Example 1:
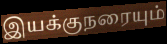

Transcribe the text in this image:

இயக்குநரையும்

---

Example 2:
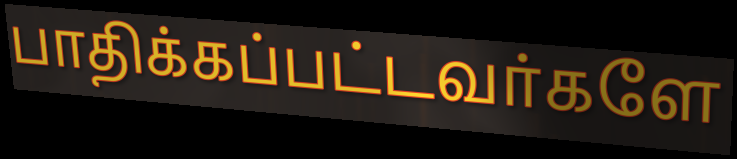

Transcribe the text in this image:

பாதிக்கப்பட்டவர்களே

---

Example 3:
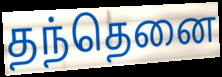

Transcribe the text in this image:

தந்தெனை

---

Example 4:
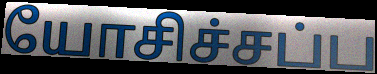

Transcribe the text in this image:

யோசிச்சப்ப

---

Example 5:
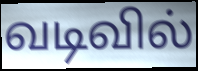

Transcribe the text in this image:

வடிவில்